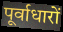
पूर्वाधारों